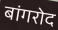
बांगरोद